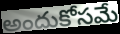
అందుకోసమే